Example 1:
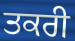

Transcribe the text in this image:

ਤਕਰੀ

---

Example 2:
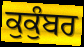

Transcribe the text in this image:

ਕੁਕੁੰਬਰ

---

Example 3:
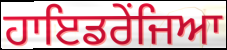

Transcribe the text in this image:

ਹਾਇਡਰੇਂਜਿਆ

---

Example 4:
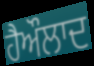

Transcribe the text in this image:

ਹੈਔਲਾਦ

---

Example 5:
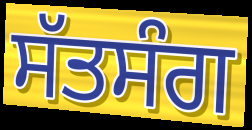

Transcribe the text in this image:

ਸੱਤਸੰਗ